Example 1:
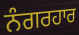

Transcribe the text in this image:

ਨੰਗਰਹਾਰ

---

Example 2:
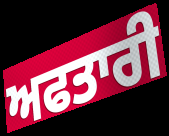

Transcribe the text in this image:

ਅਫਤਾਰੀ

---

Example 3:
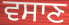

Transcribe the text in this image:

ਵਸਾਣ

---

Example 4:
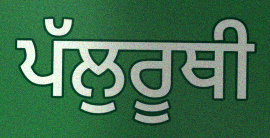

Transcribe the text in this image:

ਪੱਲੁਰੂਥੀ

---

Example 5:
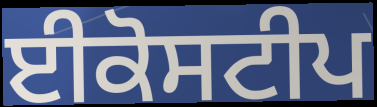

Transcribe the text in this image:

ਈਕੋਸਟੀਪ